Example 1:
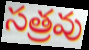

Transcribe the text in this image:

సత్రవు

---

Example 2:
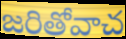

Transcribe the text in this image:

జరితోవాచ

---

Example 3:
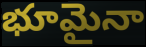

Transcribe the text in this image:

భూమైనా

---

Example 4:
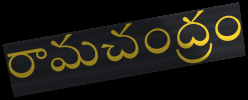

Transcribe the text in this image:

రామచంద్రం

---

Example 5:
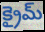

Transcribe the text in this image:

క్రైమ్